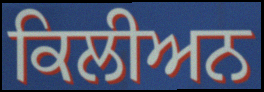
ਕਿਲੀਅਨ